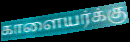
காளையர்க்கு